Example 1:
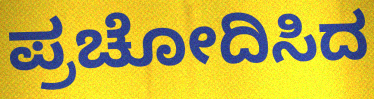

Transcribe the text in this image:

ಪ್ರಚೋದಿಸಿದ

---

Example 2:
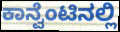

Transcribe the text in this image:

ಕಾನ್ವೆಂಟಿನಲ್ಲಿ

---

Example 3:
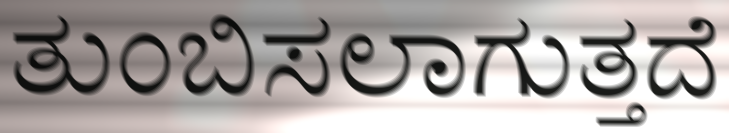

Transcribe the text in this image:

ತುಂಬಿಸಲಾಗುತ್ತದೆ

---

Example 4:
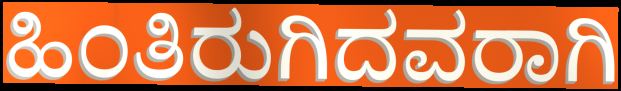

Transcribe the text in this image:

ಹಿಂತಿರುಗಿದವರಾಗಿ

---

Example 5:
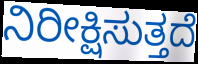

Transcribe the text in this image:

ನಿರೀಕ್ಷಿಸುತ್ತದೆ